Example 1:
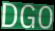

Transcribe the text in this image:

DGO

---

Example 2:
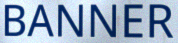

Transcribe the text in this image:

BANNER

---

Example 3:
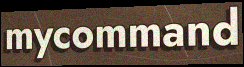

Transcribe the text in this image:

mycommand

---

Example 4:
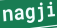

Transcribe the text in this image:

nagji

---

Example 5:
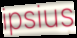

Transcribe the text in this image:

ipsius